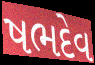
ષભદેવ